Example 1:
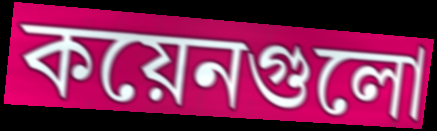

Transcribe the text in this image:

কয়েনগুলো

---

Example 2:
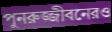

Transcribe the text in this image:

পুনরুজ্জীবনেরও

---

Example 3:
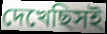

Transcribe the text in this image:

দেখেছিসই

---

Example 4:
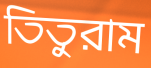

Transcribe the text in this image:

তিতুরাম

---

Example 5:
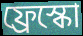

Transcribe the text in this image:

ফ্রেস্কো